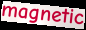
magnetic